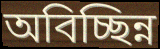
অবিচ্ছিন্ন